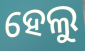
ହେଲୁ